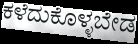
ಕಳೆದುಕೊಳ್ಳಬೇಡ